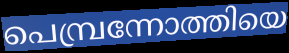
പെമ്പ്രന്നോത്തിയെ